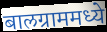
बालग्राममध्ये